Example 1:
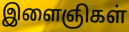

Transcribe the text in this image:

இளைஞிகள்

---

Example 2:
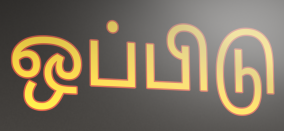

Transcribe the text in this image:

ஒப்பிடு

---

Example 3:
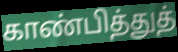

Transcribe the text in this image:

காண்பித்துத்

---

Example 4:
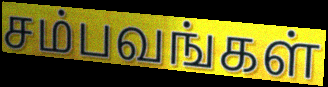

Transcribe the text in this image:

சம்பவங்கள்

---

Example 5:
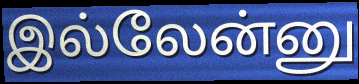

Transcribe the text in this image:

இல்லேன்னு